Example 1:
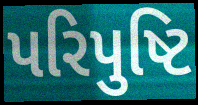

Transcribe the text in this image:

પરિપુષ્ટિ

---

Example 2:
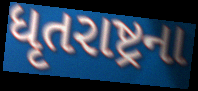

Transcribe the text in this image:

ધૃતરાષ્ટ્રના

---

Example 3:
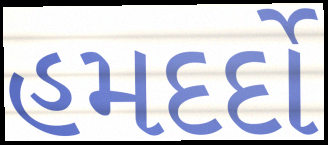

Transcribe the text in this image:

હમદર્દો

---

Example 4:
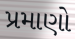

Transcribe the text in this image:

પ્રમાણો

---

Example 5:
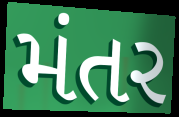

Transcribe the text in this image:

મંતર